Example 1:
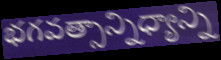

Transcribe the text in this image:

భగవత్సాన్నిధ్యాన్ని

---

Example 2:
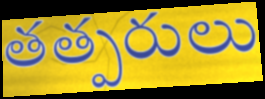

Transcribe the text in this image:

తత్పరులు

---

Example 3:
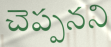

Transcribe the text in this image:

చెప్పనని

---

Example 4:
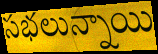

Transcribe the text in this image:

సభలున్నాయి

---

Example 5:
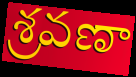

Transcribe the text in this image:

శ్రవణా